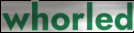
whorled